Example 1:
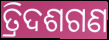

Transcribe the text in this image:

ତ୍ରିଦଶଗଣ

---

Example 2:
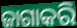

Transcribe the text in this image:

ଜାଗାକରି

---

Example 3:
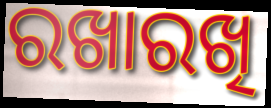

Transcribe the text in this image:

ରଖାରଖି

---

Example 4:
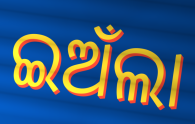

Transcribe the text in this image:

ଇଅଁଲା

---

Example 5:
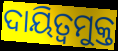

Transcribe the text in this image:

ଦାୟିତ୍ୱମୁକ୍ତ